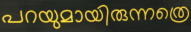
പറയുമായിരുന്നത്രെ